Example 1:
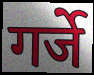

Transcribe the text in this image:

गर्जे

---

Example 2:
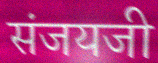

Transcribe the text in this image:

संजयजी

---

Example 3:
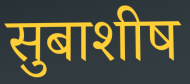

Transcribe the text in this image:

सुबाशीष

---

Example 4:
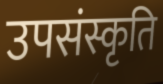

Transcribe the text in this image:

उपसंस्कृति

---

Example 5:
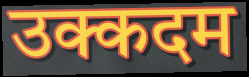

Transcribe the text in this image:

उक्कदम